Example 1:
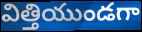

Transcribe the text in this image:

విత్తియుండగా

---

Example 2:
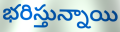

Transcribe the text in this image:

భరిస్తున్నాయి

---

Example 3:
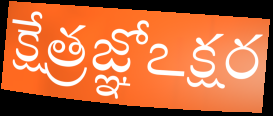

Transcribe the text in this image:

క్షేత్రజ్ఞోఽక్షర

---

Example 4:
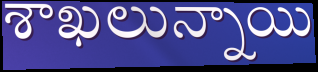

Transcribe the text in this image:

శాఖలున్నాయి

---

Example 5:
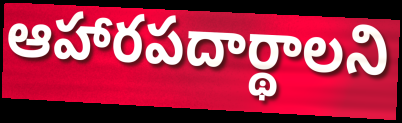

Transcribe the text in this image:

ఆహారపదార్థాలని